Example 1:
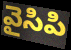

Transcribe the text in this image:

వైసిపి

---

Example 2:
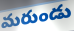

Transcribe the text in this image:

మరుండు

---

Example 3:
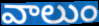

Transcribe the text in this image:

వాలుం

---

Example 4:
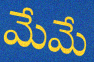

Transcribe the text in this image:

మేమే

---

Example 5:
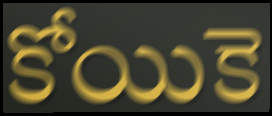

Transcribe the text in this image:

కోయికె